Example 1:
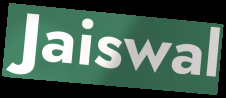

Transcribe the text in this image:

Jaiswal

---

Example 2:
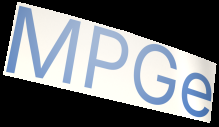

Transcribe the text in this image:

MPGe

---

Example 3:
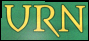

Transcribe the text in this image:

URN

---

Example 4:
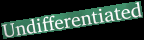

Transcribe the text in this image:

Undifferentiated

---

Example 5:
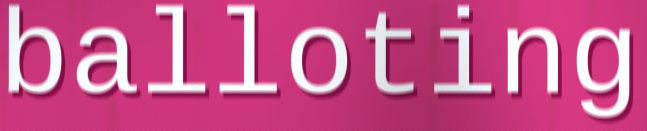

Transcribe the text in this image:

balloting